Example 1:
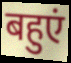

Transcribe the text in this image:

बहुएं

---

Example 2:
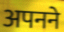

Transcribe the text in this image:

अपनने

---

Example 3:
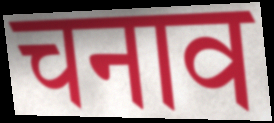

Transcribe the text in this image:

चनाव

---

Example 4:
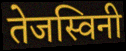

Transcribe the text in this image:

तेजस्विनी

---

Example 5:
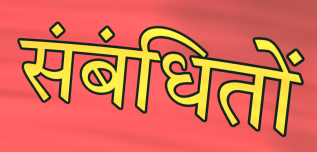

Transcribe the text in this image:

संबंधितों